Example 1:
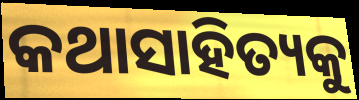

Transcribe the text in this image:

କଥାସାହିତ୍ୟକୁ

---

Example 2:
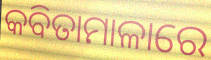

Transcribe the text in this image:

କବିତାମାଳାରେ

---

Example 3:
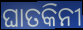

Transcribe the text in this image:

ଘାତକିନୀ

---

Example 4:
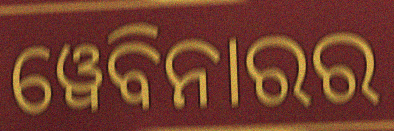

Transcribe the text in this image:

ୱେବିନାରର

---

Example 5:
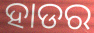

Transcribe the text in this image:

ହାଡର